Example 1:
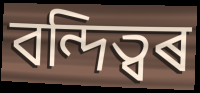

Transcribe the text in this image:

বন্দিত্বৰ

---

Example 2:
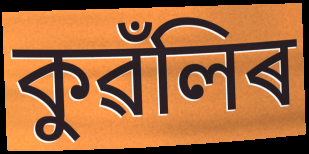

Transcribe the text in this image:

কুৱঁলিৰ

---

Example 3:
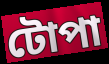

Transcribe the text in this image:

টোপা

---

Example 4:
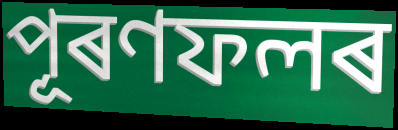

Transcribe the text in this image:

পূৰণফলৰ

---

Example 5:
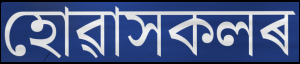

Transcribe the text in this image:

হোৱাসকলৰ